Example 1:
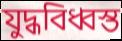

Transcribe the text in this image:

যুদ্ধবিধ্বস্ত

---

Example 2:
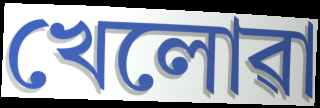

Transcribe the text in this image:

খেলোৱা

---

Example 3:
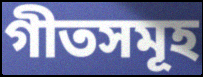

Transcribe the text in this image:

গীতসমূহ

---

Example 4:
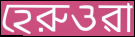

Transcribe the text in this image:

হেৰুওৱা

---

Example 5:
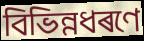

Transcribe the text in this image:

বিভিন্নধৰণে